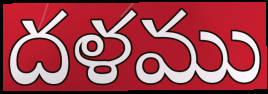
దళము